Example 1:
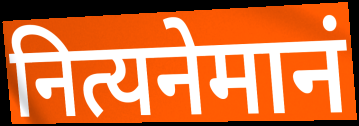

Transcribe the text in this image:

नित्यनेमानं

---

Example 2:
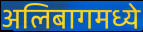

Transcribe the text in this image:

अलिबागमध्ये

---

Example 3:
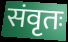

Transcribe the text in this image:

संवृतः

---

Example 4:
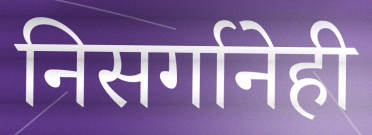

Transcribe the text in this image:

निसर्गानेही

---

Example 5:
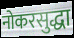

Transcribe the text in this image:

नोकरसुद्धा